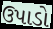
ઉપાડો